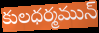
కులధర్మమున్